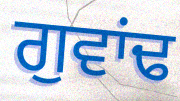
ਗੁਵਾਂਢ